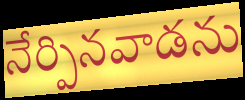
నేర్పినవాడను